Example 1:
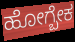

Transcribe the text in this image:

ಹೋಗ್ಬೇಕ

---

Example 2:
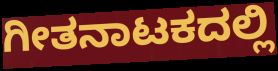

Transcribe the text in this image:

ಗೀತನಾಟಕದಲ್ಲಿ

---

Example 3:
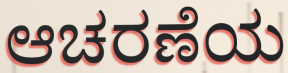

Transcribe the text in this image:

ಆಚರಣೆಯ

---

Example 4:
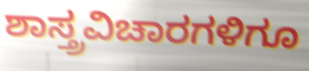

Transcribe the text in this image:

ಶಾಸ್ತ್ರವಿಚಾರಗಳಿಗೂ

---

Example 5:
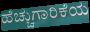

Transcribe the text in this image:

ಹೆಚ್ಚುಗಾರಿಕೆಯ